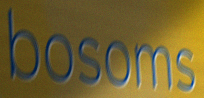
bosoms